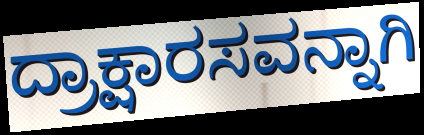
ದ್ರಾಕ್ಷಾರಸವನ್ನಾಗಿ